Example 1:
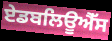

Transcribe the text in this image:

ਏਡਬਲਿਊਐੱਸ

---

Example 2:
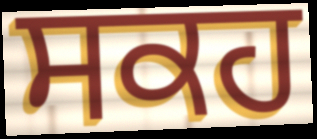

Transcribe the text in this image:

ਸਕਹ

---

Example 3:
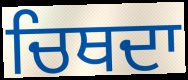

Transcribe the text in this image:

ਚਿਥਦਾ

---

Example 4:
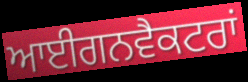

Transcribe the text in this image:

ਆਈਗਨਵੈਕਟਰਾਂ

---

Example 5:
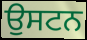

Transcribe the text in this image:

ਉਸਟਨ